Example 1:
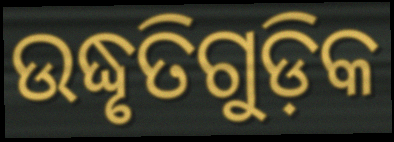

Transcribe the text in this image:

ଉଦ୍ଧୃତିଗୁଡ଼ିକ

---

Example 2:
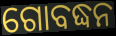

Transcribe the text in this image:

ଗୋବଦ୍ଧନ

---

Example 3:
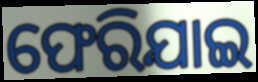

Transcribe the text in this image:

ଫେରିଯାଇ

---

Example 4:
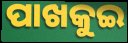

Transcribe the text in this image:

ପାଖକୁଇ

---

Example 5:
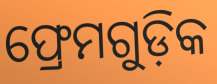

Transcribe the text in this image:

ଫ୍ରେମଗୁଡ଼ିକ